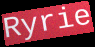
Ryrie